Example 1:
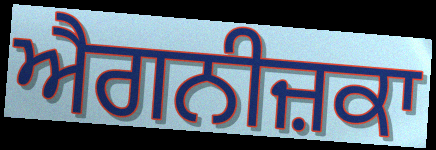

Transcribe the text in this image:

ਐਗਨੀਜ਼ਕਾ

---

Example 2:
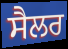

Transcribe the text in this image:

ਸੈਲਰ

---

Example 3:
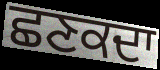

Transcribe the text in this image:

ਛਣਕਦਾ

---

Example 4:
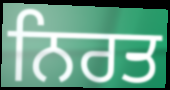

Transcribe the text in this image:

ਨਿਰਤ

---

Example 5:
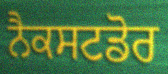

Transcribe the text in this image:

ਨੈਕਸਟਡੋਰ